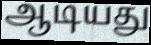
ஆடியது